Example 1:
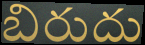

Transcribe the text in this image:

బిరుదు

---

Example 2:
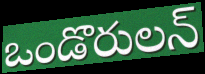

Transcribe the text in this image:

ఒండొరులన్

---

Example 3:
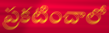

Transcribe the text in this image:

ప్రకటించాలో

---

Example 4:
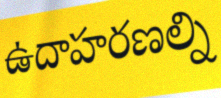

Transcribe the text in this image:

ఉదాహరణల్ని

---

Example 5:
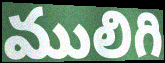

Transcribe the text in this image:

ములిగి